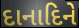
દાનાદિને